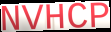
NVHCP